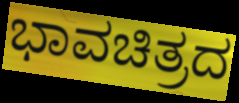
ಭಾವಚಿತ್ರದ